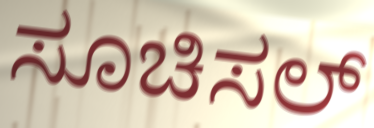
ಸೂಚಿಸಲ್